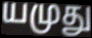
யமுது